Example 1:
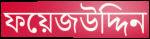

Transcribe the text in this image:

ফয়েজউদ্দিন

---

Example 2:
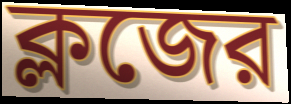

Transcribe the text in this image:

ক্লজের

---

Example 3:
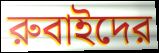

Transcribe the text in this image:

রুবাইদের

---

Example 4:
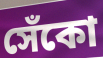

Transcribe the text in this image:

সেঁকো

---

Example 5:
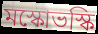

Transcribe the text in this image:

মস্কোভস্কি